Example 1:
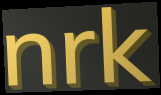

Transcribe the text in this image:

nrk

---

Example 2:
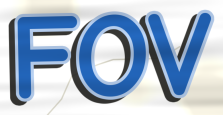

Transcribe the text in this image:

FOV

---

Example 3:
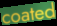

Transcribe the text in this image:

coated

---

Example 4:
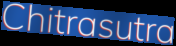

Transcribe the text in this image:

Chitrasutra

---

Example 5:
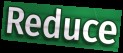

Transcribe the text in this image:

Reduce